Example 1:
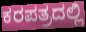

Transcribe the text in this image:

ಕರಪತ್ರದಲ್ಲಿ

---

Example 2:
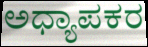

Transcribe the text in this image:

ಅಧ್ಯಾಪಕರ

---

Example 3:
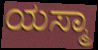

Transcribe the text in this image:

ಯಸ್ಮಾ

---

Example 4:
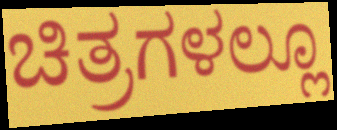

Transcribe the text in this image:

ಚಿತ್ರಗಳಲ್ಲೂ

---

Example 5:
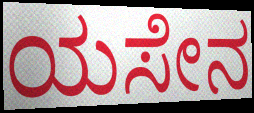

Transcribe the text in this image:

ಯಸೇನ